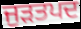
ਜੁੜਤਪਦ